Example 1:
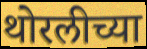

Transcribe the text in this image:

थोरलीच्या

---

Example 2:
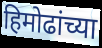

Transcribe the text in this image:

हिमोढांच्या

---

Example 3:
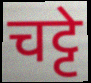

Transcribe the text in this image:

चट्टे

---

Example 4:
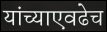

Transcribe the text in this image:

यांच्याएवढेच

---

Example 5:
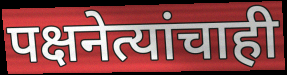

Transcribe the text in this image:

पक्षनेत्यांचाही